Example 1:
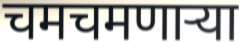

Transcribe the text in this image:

चमचमणाऱ्या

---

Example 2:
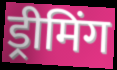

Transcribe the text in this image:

ड्रीमिंग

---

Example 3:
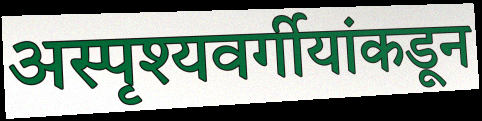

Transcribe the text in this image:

अस्पृश्यवर्गीयांकडून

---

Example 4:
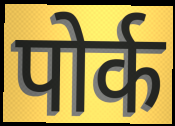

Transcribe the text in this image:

पोर्क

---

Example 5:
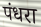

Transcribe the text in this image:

पंधरा